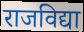
राजविद्या